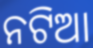
ନଟିଆ